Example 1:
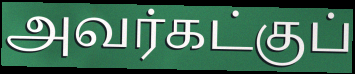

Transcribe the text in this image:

அவர்கட்குப்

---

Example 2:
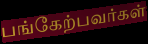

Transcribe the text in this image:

பங்கேற்பவர்கள்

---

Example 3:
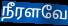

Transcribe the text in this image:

நீரளவே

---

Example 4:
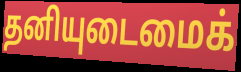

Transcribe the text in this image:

தனியுடைமைக்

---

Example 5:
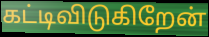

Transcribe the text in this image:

கட்டிவிடுகிறேன்